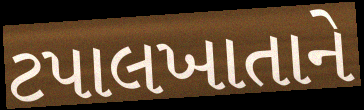
ટપાલખાતાને